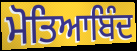
ਮੋਤਿਆਬਿੰਦ